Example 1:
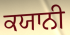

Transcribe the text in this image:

ਕਯਾਨੀ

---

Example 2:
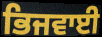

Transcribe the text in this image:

ਭਿਜਵਾਈ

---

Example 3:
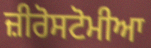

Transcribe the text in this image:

ਜ਼ੀਰੋਸਟੋਮੀਆ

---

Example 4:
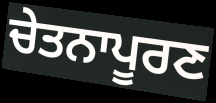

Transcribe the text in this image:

ਚੇਤਨਾਪੂਰਣ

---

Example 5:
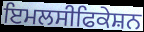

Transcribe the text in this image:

ਇਮਲਸੀਫਿਕੇਸ਼ਨ